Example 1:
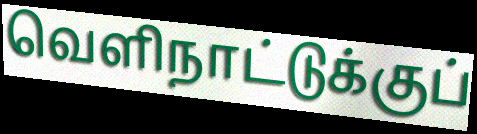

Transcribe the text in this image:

வெளிநாட்டுக்குப்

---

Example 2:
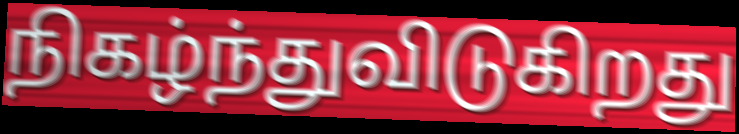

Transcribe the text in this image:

நிகழ்ந்துவிடுகிறது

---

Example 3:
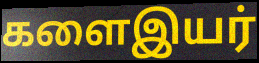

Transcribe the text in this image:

களைஇயர்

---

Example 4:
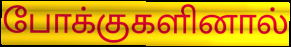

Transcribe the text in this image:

போக்குகளினால்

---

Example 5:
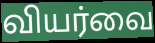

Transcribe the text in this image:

வியர்வை